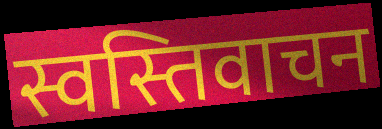
स्वस्तिवाचन